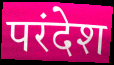
परंदेश